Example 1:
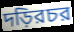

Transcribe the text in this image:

দড়িরচর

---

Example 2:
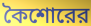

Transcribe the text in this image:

কৈশোরের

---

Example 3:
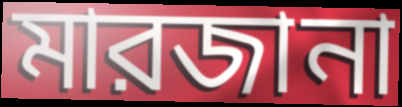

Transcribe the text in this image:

মারজানা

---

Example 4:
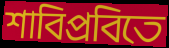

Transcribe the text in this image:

শাবিপ্রবিতে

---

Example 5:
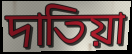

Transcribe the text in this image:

দাতিয়া